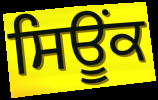
ਸਿਊਂਕ